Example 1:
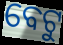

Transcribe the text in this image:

ବେଟୁ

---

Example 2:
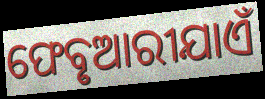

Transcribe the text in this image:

ଫେବୃଆରୀଯାଏଁ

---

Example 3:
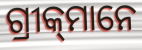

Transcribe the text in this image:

ଗ୍ରୀକ୍‍ମାନେ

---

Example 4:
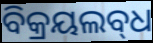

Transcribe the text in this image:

ବିକ୍ରୟଲବ୍‌ଧ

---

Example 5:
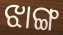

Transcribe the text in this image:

ଝାଙ୍ଗ